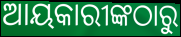
ଆୟକାରୀଙ୍କଠାରୁ